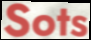
Sots